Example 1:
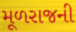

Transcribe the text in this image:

મૂળરાજની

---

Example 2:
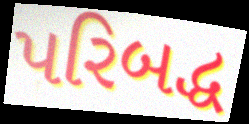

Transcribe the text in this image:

પરિબદ્ધ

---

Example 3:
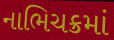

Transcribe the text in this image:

નાભિચક્રમાં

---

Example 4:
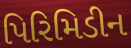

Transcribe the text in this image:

પિરિમિડીન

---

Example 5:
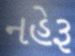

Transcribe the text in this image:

નહેરૂ